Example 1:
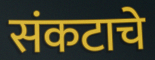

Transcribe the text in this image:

संकटाचे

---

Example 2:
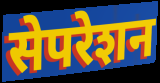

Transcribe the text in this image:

सेपरेशन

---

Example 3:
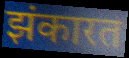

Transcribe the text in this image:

झंकारत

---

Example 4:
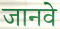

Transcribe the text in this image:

जानवे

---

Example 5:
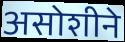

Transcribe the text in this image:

असोशीने